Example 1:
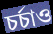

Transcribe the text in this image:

চর্চাও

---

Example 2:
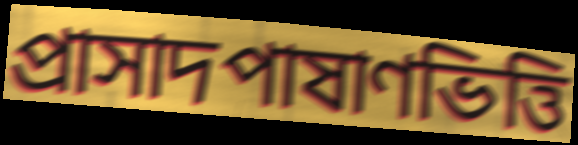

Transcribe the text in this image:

প্রাসাদপাষাণভিত্তি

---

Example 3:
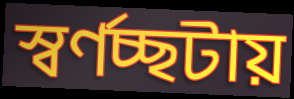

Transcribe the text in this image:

স্বর্ণচ্ছটায়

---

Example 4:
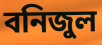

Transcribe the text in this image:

বনিজুল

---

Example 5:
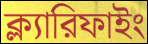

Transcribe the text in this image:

ক্ল্যারিফাইং